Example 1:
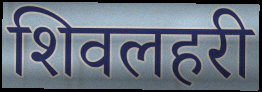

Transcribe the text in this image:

शिवलहरी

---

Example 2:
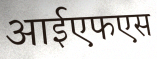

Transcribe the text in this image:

आईएफएस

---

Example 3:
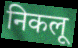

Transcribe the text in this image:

निकलू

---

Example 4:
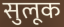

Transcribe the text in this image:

सुलूक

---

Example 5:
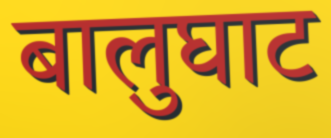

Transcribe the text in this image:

बालुघाट